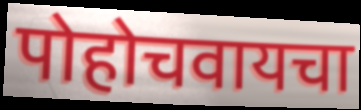
पोहोचवायचा